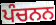
ਪੰਚਨਨ